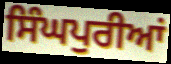
ਸਿੰਘਪੁਰੀਆਂ